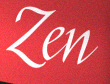
Zen